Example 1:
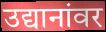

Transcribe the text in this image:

उद्यानांवर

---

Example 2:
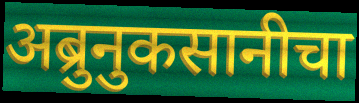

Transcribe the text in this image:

अब्रुनुकसानीचा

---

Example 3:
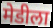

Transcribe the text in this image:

मेडीला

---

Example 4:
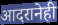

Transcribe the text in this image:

आदरानेही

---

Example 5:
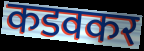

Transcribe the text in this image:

कडवकर